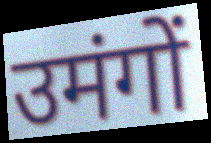
उमंगों